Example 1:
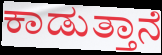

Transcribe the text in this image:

ಕಾಡುತ್ತಾನೆ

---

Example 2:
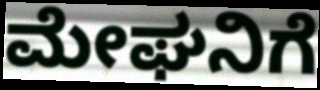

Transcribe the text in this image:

ಮೇಘನಿಗೆ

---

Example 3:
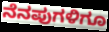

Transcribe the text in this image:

ನೆನಪುಗಳಿಗೂ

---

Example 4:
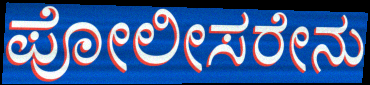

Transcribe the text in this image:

ಪೋಲೀಸರೇನು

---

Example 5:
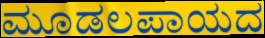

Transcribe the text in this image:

ಮೂಡಲಪಾಯದ